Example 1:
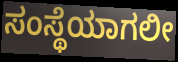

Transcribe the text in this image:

ಸಂಸ್ಥೆಯಾಗಲೀ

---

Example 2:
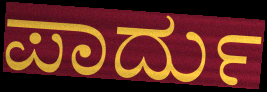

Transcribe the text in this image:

ಪಾರ್ದು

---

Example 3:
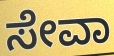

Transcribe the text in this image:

ಸೇವಾ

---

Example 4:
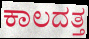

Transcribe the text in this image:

ಕಾಲದತ್ತ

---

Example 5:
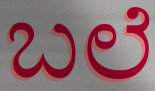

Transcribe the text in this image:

ಬಲೆ